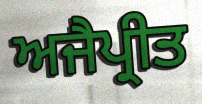
ਅਜੈਪ੍ਰੀਤ